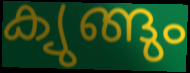
ക്യുങ്ങും